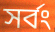
সর্বং